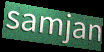
samjan